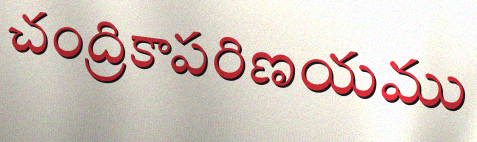
చంద్రికాపరిణయము